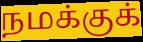
நமக்குக்